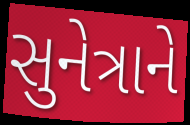
સુનેત્રાને